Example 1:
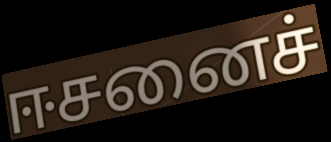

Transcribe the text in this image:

ஈசனைச்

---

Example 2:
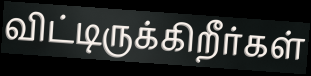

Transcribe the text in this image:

விட்டிருக்கிறீர்கள்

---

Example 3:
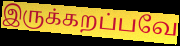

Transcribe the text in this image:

இருக்கறப்பவே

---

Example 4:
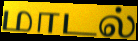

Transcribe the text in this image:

மாடல்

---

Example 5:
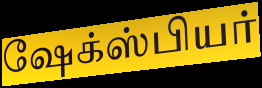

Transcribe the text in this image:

ஷேக்ஸ்பியர்